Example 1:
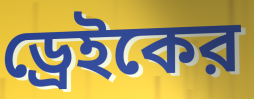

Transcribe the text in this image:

ড্রেইকের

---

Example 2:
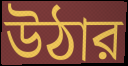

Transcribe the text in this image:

উঠার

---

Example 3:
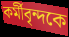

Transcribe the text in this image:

কর্মীবৃন্দকে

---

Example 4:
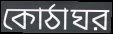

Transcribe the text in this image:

কোঠাঘর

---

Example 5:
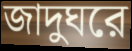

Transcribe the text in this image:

জাদুঘরে